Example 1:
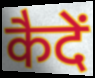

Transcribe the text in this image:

कैदें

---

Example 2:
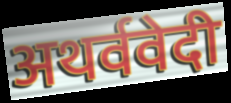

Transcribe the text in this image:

अथर्ववेदी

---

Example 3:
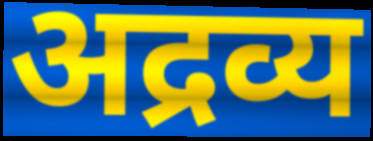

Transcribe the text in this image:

अद्रव्य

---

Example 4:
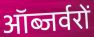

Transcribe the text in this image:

ऑब्जर्वरों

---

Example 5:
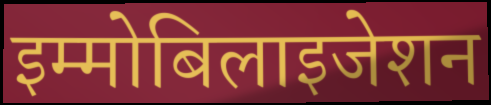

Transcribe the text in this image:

इम्मोबिलाइजेशन